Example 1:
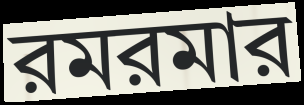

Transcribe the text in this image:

রমরমার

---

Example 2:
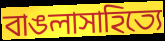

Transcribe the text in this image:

বাঙলাসাহিত্যে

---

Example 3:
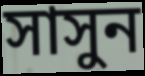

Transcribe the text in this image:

সাসুন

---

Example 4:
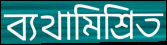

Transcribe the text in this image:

ব্যথামিশ্রিত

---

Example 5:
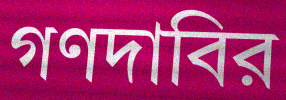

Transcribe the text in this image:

গণদাবির